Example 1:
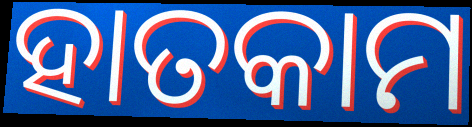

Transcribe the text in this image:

ହାତକାମ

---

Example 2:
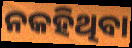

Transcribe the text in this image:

ନକହିଥିବା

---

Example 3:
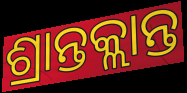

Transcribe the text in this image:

ଶ୍ରାନ୍ତକ୍ଲାନ୍ତ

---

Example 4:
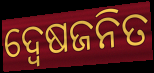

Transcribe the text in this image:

ଦ୍ଵେଷଜନିତ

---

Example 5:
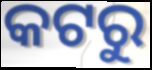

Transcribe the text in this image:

କଟରୁ